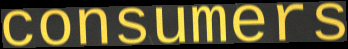
consumers